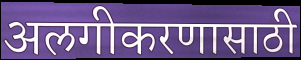
अलगीकरणासाठी